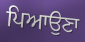
ਪਿਆਉਣਾ